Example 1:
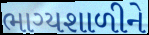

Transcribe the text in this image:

ભાગ્યશાળીને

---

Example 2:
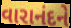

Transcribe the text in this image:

વારાનંદને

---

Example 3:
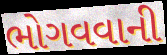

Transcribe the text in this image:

ભોગવવાની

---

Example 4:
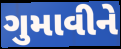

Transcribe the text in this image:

ગુમાવીને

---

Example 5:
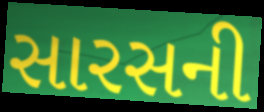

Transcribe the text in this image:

સારસની